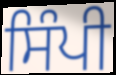
ਸਿੰਪੀ